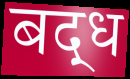
बद्ध